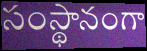
సంస్థానంగా